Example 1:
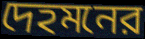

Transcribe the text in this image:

দেহমনের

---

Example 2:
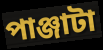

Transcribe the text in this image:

পাঞ্জাটা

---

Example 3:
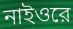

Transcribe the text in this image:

নাইওরে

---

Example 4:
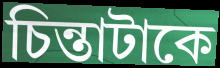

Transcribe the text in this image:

চিন্তাটাকে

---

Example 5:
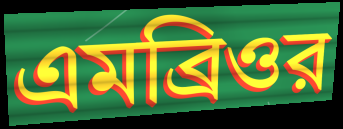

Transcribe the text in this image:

এমব্রিওর